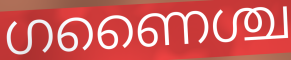
ഗണൈശ്ച